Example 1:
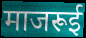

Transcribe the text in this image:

माजरूई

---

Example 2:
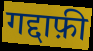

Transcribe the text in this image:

गद्दाफ़ी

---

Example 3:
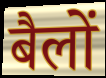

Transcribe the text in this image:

बैलों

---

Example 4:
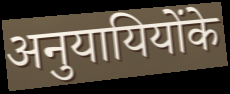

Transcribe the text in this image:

अनुयायियोंके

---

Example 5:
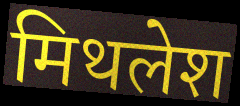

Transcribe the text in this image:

मिथलेश